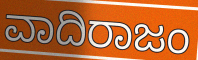
ವಾದಿರಾಜಂ